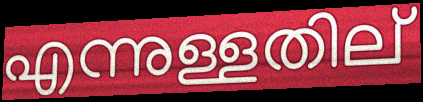
എന്നുള്ളതില്